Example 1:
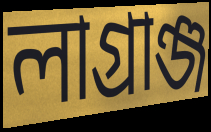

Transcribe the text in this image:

লাগ্ৰাঞ্জ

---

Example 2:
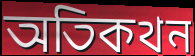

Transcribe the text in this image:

অতিকথন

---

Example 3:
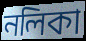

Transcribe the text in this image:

নলিকা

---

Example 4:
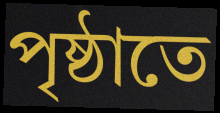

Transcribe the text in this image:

পৃষ্ঠাতে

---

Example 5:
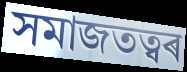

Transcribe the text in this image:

সমাজতত্বৰ